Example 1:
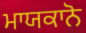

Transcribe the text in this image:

ਮਾਯਕਾਨੋ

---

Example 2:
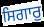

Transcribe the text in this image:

ਸਿਗਾਰੁ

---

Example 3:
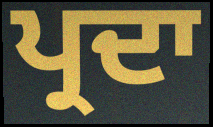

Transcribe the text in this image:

ਪ੍ਰਦਾ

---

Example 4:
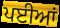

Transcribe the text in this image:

ਪਈਆਂ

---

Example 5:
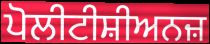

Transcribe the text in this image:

ਪੋਲੀਟੀਸ਼ੀਅਨਜ਼